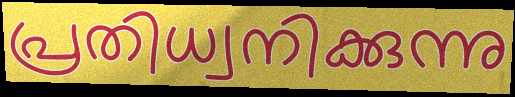
പ്രതിധ്വനിക്കുന്നു